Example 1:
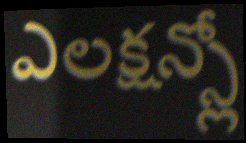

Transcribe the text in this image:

ఎలక్షన్స్లో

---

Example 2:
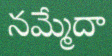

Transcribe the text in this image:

నమ్మేదా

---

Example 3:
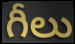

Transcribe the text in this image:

గీలు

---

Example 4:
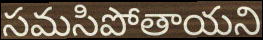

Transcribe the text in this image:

సమసిపోతాయని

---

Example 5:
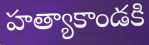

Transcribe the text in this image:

హత్యాకాండకి